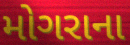
મોગરાના